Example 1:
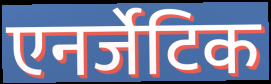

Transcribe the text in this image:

एनर्जेटिक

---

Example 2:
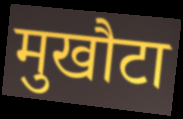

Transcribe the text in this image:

मुखौटा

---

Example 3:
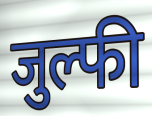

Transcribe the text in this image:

जुल्फी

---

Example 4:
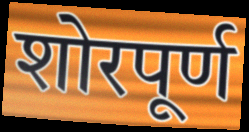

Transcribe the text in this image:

शोरपूर्ण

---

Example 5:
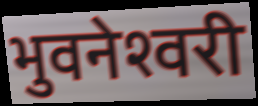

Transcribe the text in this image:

भुवनेश्वरी